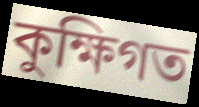
কুক্ষিগত